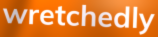
wretchedly